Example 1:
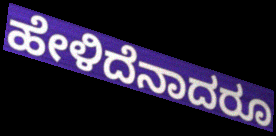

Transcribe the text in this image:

ಹೇಳಿದೆನಾದರೂ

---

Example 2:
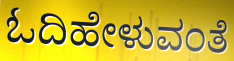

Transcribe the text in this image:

ಓದಿಹೇಳುವಂತೆ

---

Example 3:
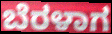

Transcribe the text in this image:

ಬೆರಳಾಗ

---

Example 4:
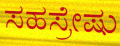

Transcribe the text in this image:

ಸಹಸ್ರೇಷು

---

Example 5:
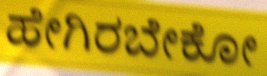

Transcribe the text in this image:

ಹೇಗಿರಬೇಕೋ